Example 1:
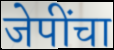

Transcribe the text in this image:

जेपींचा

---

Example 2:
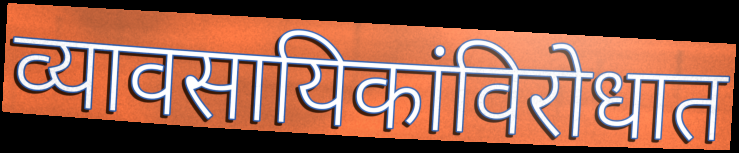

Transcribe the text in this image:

व्यावसायिकांविरोधात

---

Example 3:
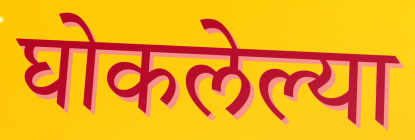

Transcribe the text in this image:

घोकलेल्या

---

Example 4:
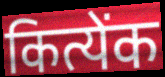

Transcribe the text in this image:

कित्येंक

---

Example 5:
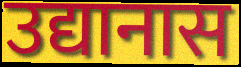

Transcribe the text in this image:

उद्यानास